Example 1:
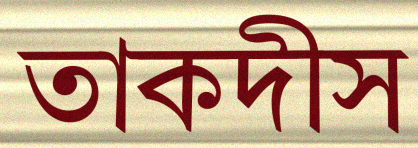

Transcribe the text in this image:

তাকদীস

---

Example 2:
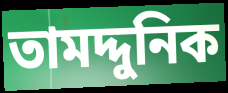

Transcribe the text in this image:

তামদ্দুনিক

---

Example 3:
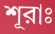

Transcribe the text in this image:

শূরাঃ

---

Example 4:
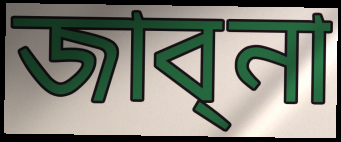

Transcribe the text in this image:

জাব্‌না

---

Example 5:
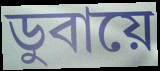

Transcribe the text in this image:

ডুবায়ে